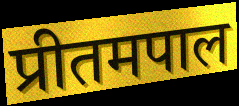
प्रीतमपाल